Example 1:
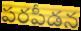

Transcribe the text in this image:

పరపీడన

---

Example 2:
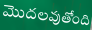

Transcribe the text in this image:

మొదలవుతోంది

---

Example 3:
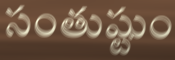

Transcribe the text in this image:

సంతుష్టుం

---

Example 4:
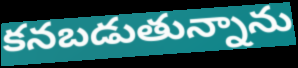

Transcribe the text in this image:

కనబడుతున్నాను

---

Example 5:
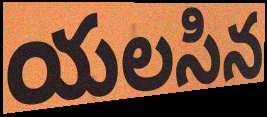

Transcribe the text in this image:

యలసిన